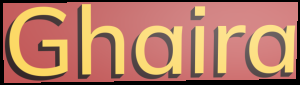
Ghaira